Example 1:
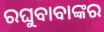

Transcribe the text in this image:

ରଘୁବାବାଙ୍କର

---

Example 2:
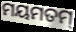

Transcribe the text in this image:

ମୟମତମ୍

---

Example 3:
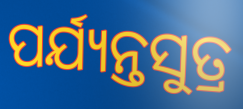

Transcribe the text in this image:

ପର୍ଯ୍ୟନ୍ତସୁତ୍ର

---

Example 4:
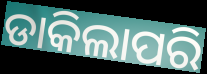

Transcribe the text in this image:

ଡାକିଲାପରି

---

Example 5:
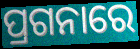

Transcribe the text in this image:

ପ୍ରଗନାରେ